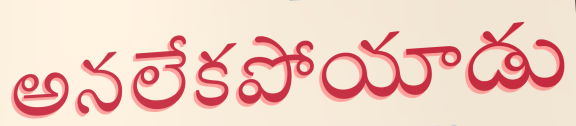
అనలేకపోయాడు